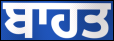
ਬਾਹਤ